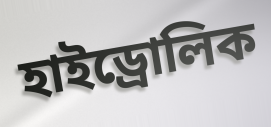
হাইড্রোলিক